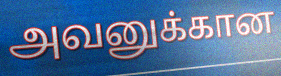
அவனுக்கான